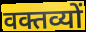
वक्तव्यों